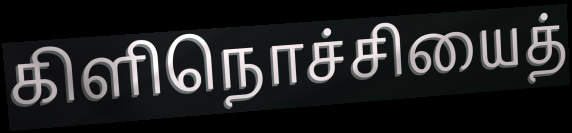
கிளிநொச்சியைத்